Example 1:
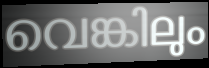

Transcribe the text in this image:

വെങ്കിലും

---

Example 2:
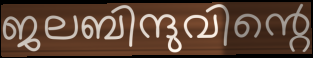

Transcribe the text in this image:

ജലബിന്ദുവിന്റെ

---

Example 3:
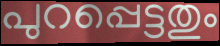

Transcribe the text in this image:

പുറപ്പെട്ടതും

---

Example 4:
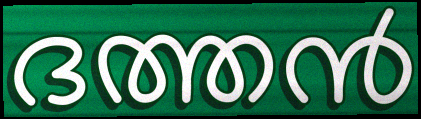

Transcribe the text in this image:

ദത്തൻ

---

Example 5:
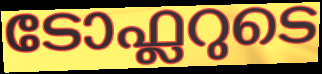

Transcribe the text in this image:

ടോഫ്ലറുടെ